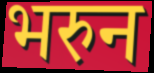
भरुन